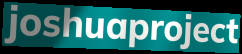
joshuaproject